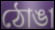
ঠোঙা